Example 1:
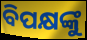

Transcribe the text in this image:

ବିପକ୍ଷଙ୍କୁ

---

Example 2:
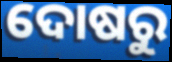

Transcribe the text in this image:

ଦୋଷରୁ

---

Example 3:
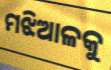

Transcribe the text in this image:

ମଝିଆଳକୁ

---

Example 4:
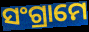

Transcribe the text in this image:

ସଂଗ୍ରାମେ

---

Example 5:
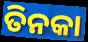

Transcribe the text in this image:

ତିନକା